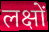
लक्षों